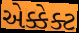
એક્કેક્ટ